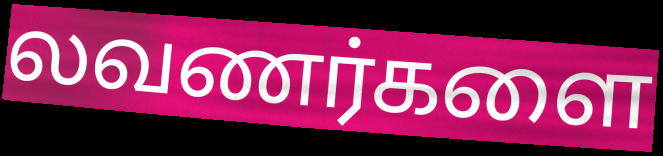
லவணர்களை